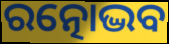
ରତ୍ନୋଦ୍ଭବ